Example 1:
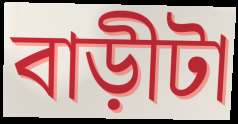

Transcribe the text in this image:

বাড়ীটা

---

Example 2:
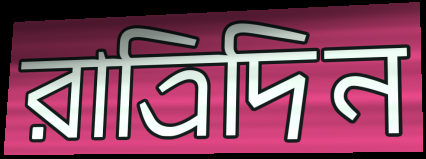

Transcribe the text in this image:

রাত্রিদিন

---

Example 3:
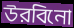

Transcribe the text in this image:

উরবিনো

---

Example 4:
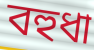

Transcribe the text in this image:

বহুধা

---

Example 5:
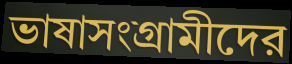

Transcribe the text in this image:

ভাষাসংগ্রামীদের